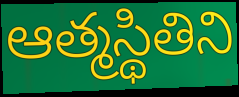
ఆత్మస్థితిని